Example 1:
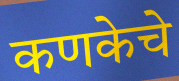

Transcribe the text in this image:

कणकेचे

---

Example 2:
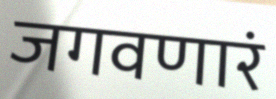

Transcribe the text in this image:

जगवणारं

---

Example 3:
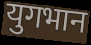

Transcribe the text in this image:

युगभान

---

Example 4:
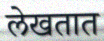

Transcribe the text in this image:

लेखतात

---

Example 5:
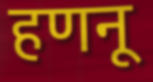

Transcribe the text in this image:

हणनू